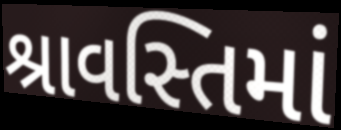
શ્રાવસ્તિમાં